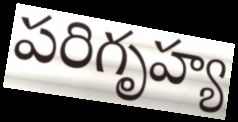
పరిగృహ్య